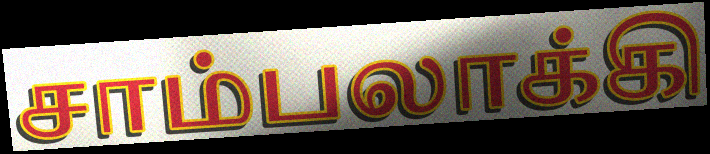
சாம்பலாக்கி